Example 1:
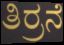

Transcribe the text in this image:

ತಿರ್ರನೆ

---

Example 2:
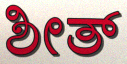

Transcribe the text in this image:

ಶೀತ್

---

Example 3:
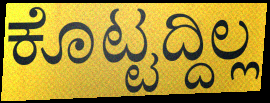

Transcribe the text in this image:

ಕೊಟ್ಟದ್ದಿಲ್ಲ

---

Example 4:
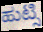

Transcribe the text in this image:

ಹುಟ್ಸಿ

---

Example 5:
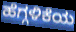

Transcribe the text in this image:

ಹೆಗ್ಗಳಿಕೆಯ